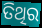
ତିଥିର